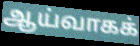
ஆய்வாகக்